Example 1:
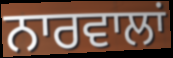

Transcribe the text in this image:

ਨਾਰਵਾਲਾਂ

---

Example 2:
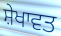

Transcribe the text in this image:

ਸ਼ੇਖਾਵਤ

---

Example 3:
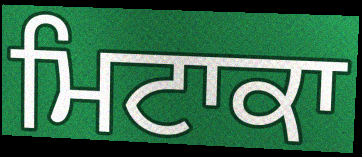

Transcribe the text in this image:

ਮਿਟਾਕਾ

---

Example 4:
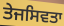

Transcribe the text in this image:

ਤੇਜਸਿਵਤਾ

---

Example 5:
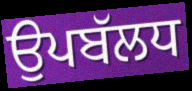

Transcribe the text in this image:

ਉਪਬੱਲਧ